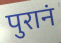
पुरानं